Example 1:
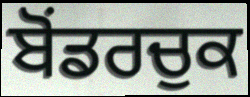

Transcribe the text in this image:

ਬੋਂਡਰਚੁਕ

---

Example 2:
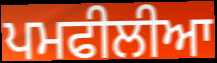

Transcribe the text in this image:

ਪਮਫੀਲੀਆ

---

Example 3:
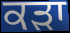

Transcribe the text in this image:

ਕੜਾ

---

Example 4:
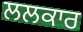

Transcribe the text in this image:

ਲਲਕਾਰ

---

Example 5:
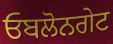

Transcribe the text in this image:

ਓਬਲੋਨਗੇਟ